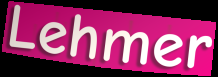
Lehmer